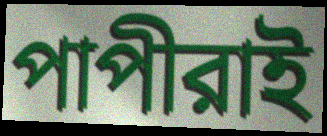
পাপীরাই